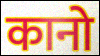
कानो